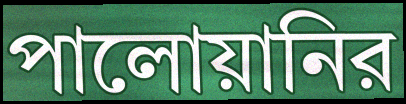
পালোয়ানির